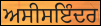
ਅਸੀਸਇੰਦਰ